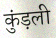
कुंड़ली